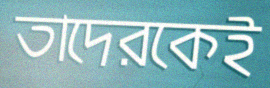
তাদেরকেই